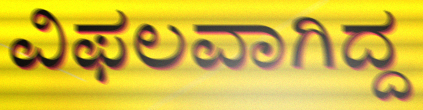
ವಿಫಲವಾಗಿದ್ದ